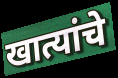
खात्यांचे